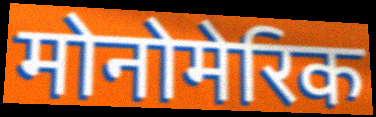
मोनोमेरिक